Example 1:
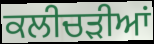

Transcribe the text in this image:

ਕਲੀਚੜੀਆਂ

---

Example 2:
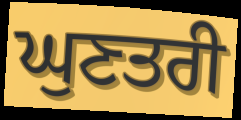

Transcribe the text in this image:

ਘੁਣਤਰੀ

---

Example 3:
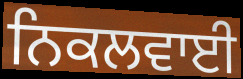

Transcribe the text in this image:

ਨਿਕਲਵਾਈ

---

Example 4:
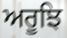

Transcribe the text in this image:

ਅਰੂਝਿ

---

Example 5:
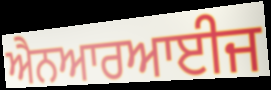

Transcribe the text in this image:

ਐਨਆਰਆਈਜ